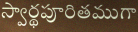
స్వార్థపూరితముగా